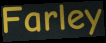
Farley